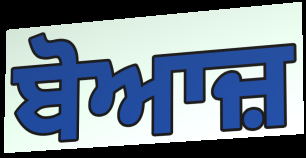
ਬੋਆਜ਼